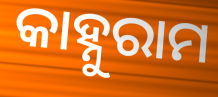
କାହ୍ନୁରାମ